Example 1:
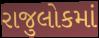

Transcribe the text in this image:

રાજુલોકમાં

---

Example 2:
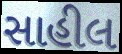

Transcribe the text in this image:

સાહીલ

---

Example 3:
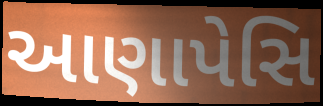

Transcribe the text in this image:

આણાપેસિ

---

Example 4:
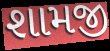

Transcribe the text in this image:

શામજી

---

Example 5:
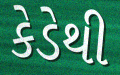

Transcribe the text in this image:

કેડેથી